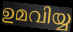
ഉമവിയ്യ